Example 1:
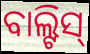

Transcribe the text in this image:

ବାଲ୍ଟିସ୍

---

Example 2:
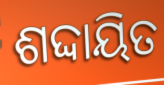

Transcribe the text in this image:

ଶଦ୍ଦାୟିତ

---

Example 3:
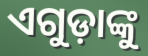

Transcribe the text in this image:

ଏଗୁଡ଼ାଙ୍କୁ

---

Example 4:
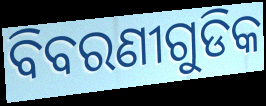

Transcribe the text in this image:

ବିବରଣୀଗୁଡିକ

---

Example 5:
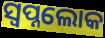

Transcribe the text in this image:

ସ୍ଵପ୍ନଲୋକ